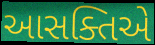
આસક્તિએ